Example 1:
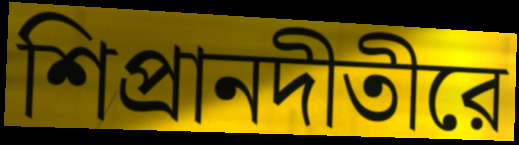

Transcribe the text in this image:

শিপ্রানদীতীরে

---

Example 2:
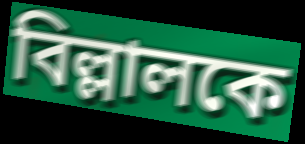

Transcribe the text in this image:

বিল্লালকে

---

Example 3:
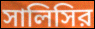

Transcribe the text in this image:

সালিসির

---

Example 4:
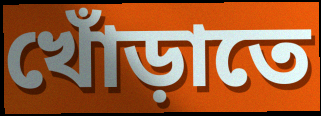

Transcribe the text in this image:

খোঁড়াতে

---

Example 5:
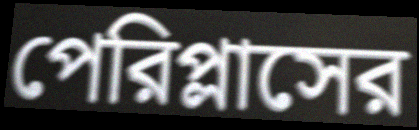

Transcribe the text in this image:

পেরিপ্লাসের